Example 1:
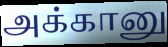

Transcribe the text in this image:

அக்கானு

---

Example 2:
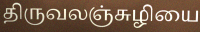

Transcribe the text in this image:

திருவலஞ்சுழியை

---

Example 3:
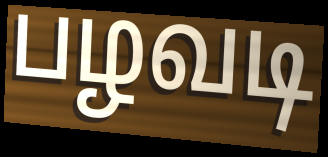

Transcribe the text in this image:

பழவடி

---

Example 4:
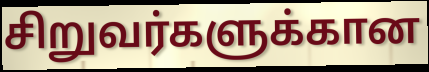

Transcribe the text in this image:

சிறுவர்களுக்கான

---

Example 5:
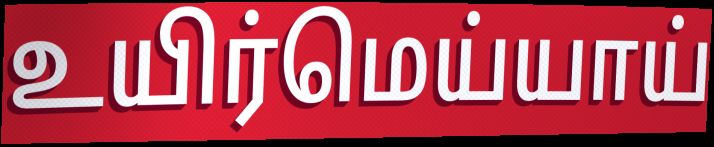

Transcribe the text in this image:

உயிர்மெய்யாய்